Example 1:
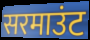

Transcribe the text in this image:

सरमाउंट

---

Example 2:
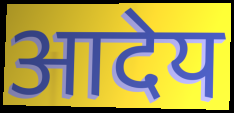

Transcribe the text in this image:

आदेय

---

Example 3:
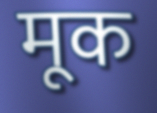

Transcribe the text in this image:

मूक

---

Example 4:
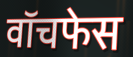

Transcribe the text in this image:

वॉचफेस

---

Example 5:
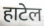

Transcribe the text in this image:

हाटेल